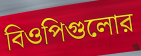
বিওপিগুলোর